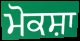
ਮੋਕਸ਼ਾ